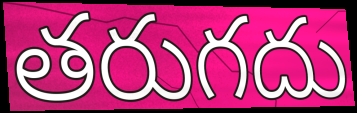
తరుగదు